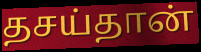
தசய்தான்